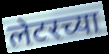
लेटरच्या